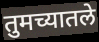
तुमच्यातले